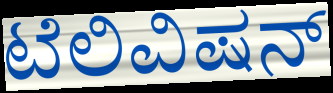
ಟೆಲಿವಿಷನ್